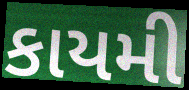
કાયમી